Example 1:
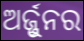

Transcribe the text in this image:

ଅର୍ଜ୍ଜୁନର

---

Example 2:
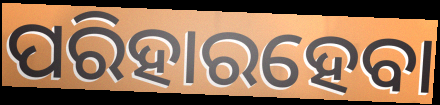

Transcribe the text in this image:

ପରିହାରହେବା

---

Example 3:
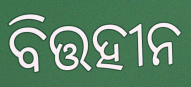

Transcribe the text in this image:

ବିତ୍ତହୀନ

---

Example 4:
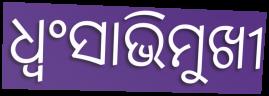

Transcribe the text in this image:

ଧ୍ଵଂସାଭିମୁଖୀ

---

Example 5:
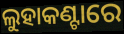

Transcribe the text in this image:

ଲୁହାକଣ୍ଟାରେ